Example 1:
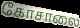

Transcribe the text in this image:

கோசாலை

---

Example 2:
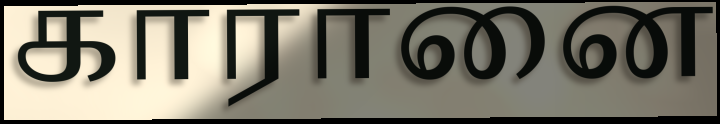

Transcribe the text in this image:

காரானை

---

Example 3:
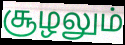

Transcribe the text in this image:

சூழலும்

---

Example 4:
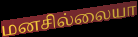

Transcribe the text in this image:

மனசில்லையா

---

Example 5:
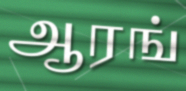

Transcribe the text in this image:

ஆரங்